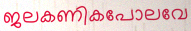
ജലകണികപോലവേ